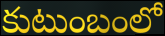
కుటుంబంలో